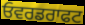
ਓਵਰਡਰਾਫਟ